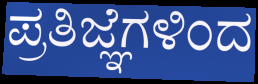
ಪ್ರತಿಜ್ಞೆಗಳಿಂದ